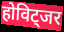
होविट्जर